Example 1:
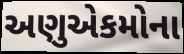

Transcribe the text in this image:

અણુએકમોના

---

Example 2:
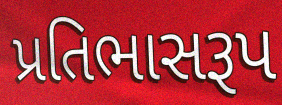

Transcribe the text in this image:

પ્રતિભાસરૂપ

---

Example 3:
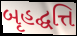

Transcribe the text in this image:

બૃહદ્ઘત્તિ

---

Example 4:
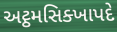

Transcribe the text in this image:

અટ્ઠમસિક્ખાપદે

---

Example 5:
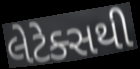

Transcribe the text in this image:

લેટેક્સથી